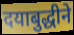
दयाबुद्धीने